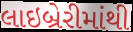
લાઇબ્રેરીમાંથી